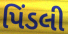
પિંડલી